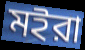
মইরা